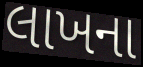
લાખના